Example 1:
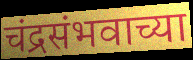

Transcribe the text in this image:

चंद्रसंभवाच्या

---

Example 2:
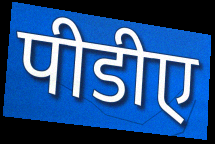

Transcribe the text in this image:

पीडीए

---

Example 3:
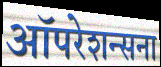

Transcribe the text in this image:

ऑपरेशन्सना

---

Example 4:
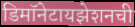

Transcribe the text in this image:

डिमॉनेटायझेशनची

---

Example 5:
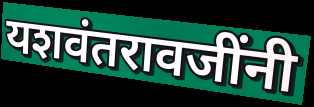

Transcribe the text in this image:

यशवंतरावजींनी